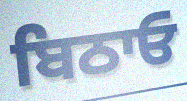
ਬਿਠਾਓ